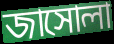
জাসোলা